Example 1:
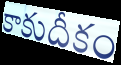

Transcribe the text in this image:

కాకుదీకం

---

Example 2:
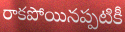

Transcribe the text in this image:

రాకపోయినప్పటికీ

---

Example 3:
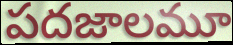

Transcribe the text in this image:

పదజాలమూ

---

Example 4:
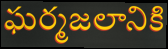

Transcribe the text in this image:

ఘర్మజలానికి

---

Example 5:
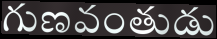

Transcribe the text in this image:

గుణవంతుడు